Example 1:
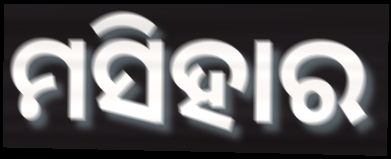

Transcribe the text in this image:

ମସିହାର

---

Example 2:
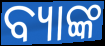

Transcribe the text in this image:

ବ୍ୟାଙ୍କ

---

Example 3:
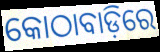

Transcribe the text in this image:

କୋଠାବାଡ଼ିରେ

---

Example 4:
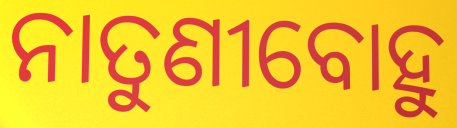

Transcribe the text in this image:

ନାତୁଣୀବୋହୁ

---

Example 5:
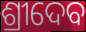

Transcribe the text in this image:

ଶ୍ରୀଦେବ